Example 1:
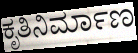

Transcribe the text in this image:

ಕೃತಿನಿರ್ಮಾಣ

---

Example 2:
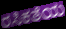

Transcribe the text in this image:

ರಸಿಕತೆಯ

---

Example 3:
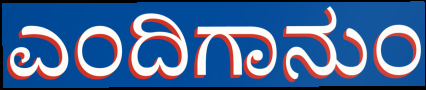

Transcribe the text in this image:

ಎಂದಿಗಾನುಂ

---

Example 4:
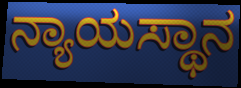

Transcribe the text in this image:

ನ್ಯಾಯಸ್ಥಾನ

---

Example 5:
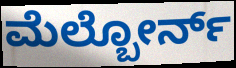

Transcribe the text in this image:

ಮೆಲ್ಬೋರ್ನ್